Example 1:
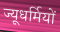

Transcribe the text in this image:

ज्यूधर्मियों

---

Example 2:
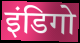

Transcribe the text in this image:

इंडिगो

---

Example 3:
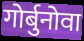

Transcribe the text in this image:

गोर्बुनोवा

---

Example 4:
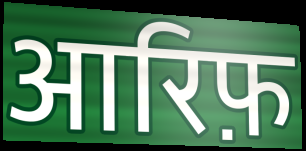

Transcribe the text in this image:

आरिफ़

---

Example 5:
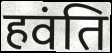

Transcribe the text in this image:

हवंति